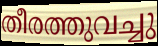
തീരത്തുവച്ചു